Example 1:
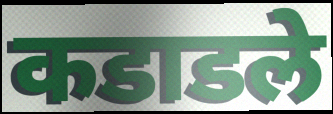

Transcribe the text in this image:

कडाडले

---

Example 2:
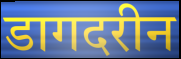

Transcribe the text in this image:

डागदरीन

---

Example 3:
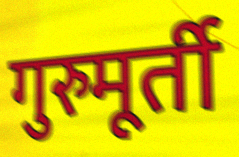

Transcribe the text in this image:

गुरुमूर्ती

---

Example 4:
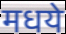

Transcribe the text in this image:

मधये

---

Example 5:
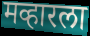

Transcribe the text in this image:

मव्हारला